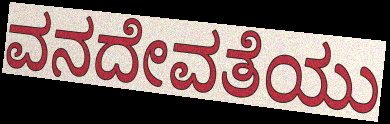
ವನದೇವತೆಯು